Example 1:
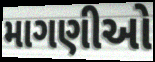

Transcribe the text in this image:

માગણીઓ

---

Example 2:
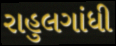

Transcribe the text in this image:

રાહુલગાંધી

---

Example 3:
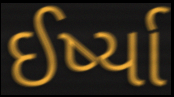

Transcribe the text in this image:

ઈર્ષ્યા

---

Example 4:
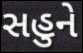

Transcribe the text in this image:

સહુને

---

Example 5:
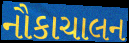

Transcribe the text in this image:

નૌકાચાલન